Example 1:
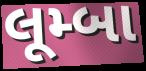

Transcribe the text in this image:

લૂમ્બા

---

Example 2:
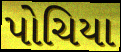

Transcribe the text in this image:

પોચિયા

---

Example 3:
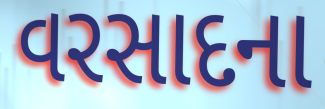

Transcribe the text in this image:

વરસાદના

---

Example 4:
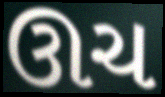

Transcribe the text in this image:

ઊચ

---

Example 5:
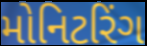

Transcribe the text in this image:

મોનિટરિંગ